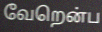
வேறென்ப